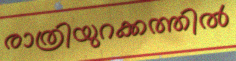
രാത്രിയുറക്കത്തിൽ